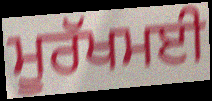
ਮੂਰੱਖਮਈ